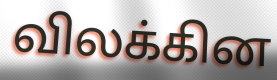
விலக்கின